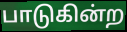
பாடுகின்ற